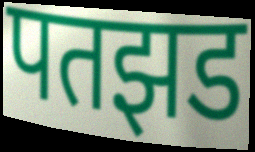
पतझड